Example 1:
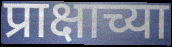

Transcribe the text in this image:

प्राक्षाच्या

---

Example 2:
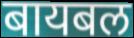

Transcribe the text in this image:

बायबल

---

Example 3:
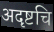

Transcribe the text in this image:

अदृष्टचि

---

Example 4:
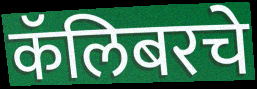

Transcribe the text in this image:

कॅलिबरचे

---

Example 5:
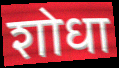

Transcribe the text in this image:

शोधा